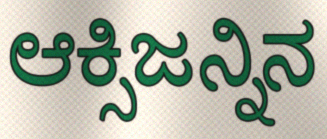
ಆಕ್ಸಿಜನ್ನಿನ